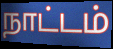
நாட்டம்